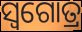
ସ୍ୱଗୋତ୍ର